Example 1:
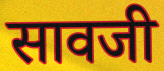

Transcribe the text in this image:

सावजी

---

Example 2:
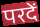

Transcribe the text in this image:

परदें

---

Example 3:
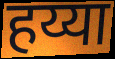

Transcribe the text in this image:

हय्या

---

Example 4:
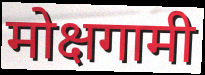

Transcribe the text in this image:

मोक्षगामी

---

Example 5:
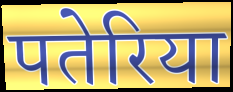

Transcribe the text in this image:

पतेरिया